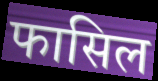
फासिल